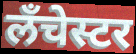
लँचेस्टर